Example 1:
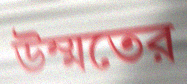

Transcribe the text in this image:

উম্মতের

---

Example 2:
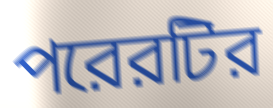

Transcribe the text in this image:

পরেরটির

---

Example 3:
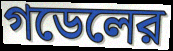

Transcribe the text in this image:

গডেলের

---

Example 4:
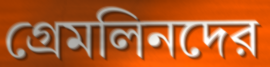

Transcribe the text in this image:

গ্রেমলিনদের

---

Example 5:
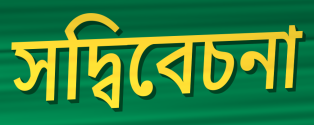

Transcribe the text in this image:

সদ্বিবেচনা